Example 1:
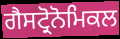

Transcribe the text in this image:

ਗੈਸਟ੍ਰੋਨੋਮਿਕਲ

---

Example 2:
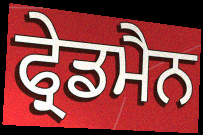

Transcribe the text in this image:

ਫ੍ਰੇਡਮੈਨ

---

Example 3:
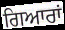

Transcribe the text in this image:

ਗਿਆਰਾਂ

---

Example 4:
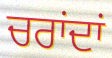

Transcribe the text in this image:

ਚਰਾਂਦਾਂ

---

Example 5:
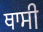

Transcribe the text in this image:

ਥਾਸੀ